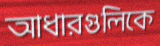
আধারগুলিকে